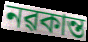
নৱকান্ত